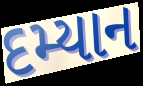
દમ્યાન